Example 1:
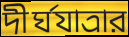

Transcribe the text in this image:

দীর্ঘযাত্রার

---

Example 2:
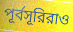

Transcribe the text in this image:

পূর্বসূরিরাও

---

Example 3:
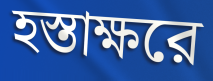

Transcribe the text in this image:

হস্তাক্ষরে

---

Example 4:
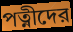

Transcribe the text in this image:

পত্নীদের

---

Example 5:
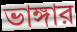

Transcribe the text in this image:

ভাঙ্গার